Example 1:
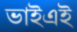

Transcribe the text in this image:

ভাইএই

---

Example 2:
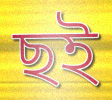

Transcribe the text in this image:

ছই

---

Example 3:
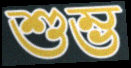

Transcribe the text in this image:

শুম্ভ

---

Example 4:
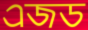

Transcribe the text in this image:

এজড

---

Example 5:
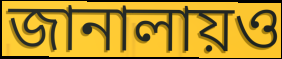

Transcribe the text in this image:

জানালায়ও